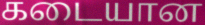
கடையான